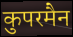
कुपरमैन